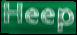
Heep